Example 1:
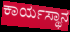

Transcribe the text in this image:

ಕಾರ್ಯಸ್ಥಾನ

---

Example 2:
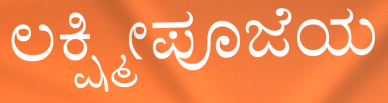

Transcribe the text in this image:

ಲಕ್ಷ್ಮೀಪೂಜೆಯ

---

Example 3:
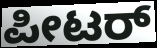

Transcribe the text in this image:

ಪೀಟರ್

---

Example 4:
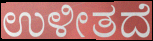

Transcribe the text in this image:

ಉಳೀತದೆ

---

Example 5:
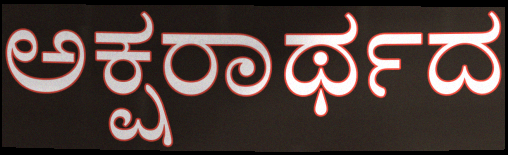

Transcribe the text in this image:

ಅಕ್ಷರಾರ್ಥದ